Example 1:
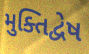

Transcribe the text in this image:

મુક્તિદ્વેષ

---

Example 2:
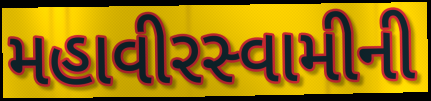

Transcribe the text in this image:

મહાવીરસ્વામીની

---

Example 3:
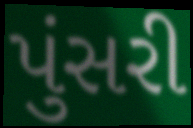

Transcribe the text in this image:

પુંસરી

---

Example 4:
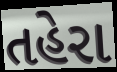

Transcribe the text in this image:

તહેરા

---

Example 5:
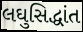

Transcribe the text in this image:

લઘુસિદ્ધાંત